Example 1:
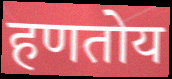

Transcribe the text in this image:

हणतोय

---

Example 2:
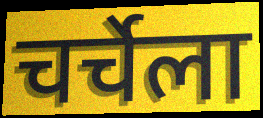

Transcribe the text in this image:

चर्चेला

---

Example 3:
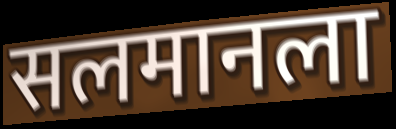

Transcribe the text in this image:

सलमानला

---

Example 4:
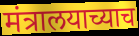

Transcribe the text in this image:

मंत्रालयाच्याच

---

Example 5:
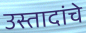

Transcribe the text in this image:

उस्तादांचे